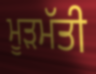
ਮੂੜਮੱਤੀ